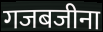
गजबजीना